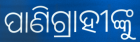
ପାଣିଗ୍ରାହୀଙ୍କୁ